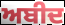
ਅਬੀਦ